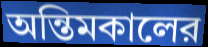
অন্তিমকালের